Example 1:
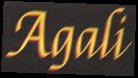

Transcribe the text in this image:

Agali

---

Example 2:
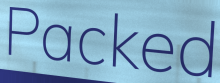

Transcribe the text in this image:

Packed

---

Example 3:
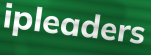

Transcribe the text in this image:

ipleaders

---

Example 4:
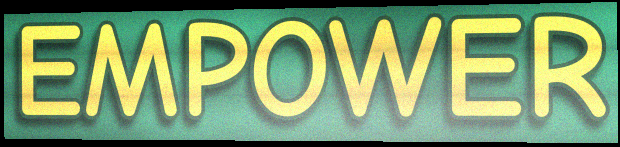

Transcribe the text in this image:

EMPOWER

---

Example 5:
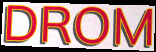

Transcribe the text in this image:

DROM